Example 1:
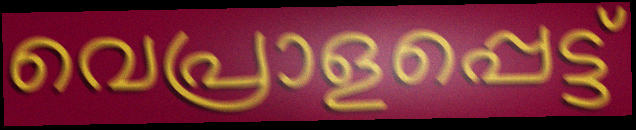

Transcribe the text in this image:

വെപ്രാളപ്പെട്ട്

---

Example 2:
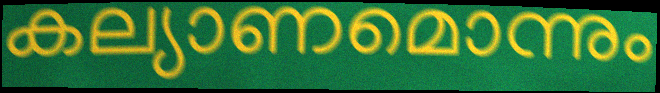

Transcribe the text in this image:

കല്യാണമൊന്നും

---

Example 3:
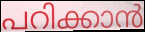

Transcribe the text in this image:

പറിക്കാൻ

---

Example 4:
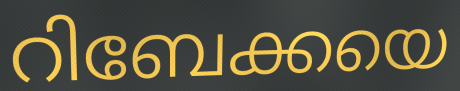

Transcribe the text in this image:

റിബേക്കയെ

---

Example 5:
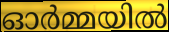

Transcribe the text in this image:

ഓർമ്മയിൽ